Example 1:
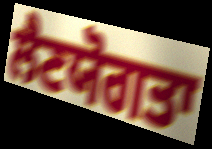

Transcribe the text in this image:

ਲੈਣਯੋਗਤਾ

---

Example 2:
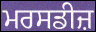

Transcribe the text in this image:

ਮਰਸਡੀਜ਼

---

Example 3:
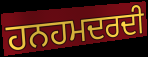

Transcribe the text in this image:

ਹਨਹਮਦਰਦੀ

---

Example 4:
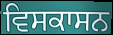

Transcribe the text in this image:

ਵਿਸਕਾਸਨ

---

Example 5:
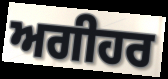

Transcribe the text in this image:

ਅਗੀਹਰ